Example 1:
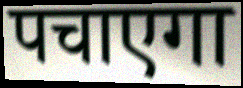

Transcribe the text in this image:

पचाएगा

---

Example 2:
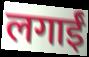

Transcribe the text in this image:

लगाईं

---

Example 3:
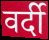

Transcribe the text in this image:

वर्दी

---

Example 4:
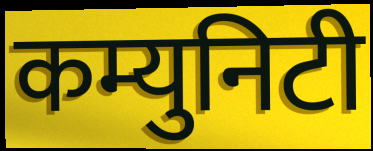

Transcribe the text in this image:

कम्युनिटी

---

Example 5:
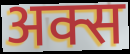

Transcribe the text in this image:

अक्स